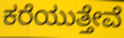
ಕರೆಯುತ್ತೇವೆ